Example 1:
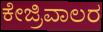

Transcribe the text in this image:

ಕೇಜ್ರಿವಾಲರ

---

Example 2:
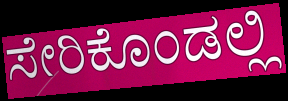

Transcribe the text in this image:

ಸೇರಿಕೊಂಡಲ್ಲಿ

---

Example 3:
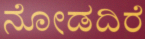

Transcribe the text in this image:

ನೋಡದಿರೆ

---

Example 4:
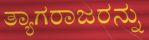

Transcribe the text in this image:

ತ್ಯಾಗರಾಜರನ್ನು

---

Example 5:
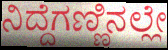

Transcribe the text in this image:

ನಿದ್ದೆಗಣ್ಣಿನಲ್ಲೇ